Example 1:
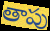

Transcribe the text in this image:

తాపు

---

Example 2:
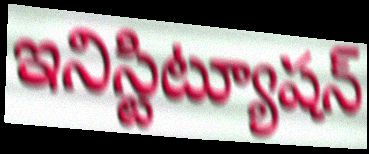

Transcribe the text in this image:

ఇనిస్టిట్యూషన్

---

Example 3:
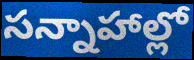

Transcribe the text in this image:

సన్నాహాల్లో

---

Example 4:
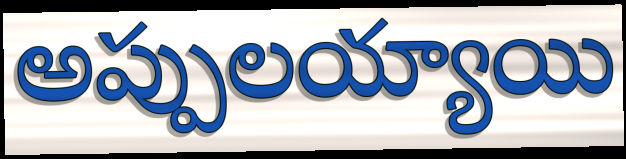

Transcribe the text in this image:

అప్పులయ్యాయి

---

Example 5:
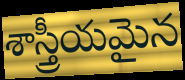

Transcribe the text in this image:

శాస్త్రీయమైన